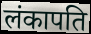
लंकापति